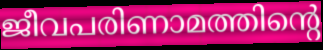
ജീവപരിണാമത്തിന്റെ